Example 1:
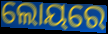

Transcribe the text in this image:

ଲୋୟରେ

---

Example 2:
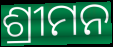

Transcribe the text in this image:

ଶ୍ରୀମନ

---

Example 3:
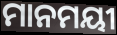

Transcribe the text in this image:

ମାନମୟୀ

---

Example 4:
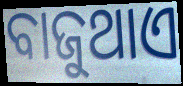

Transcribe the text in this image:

ବାଜୁଥାଏ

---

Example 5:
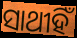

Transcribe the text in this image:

ସାଥୀହିଁ